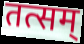
तत्सम्